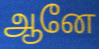
ஆனே